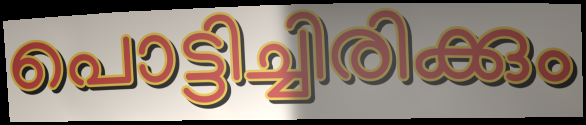
പൊട്ടിച്ചിരിക്കും